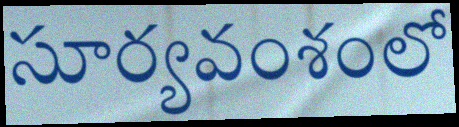
సూర్యవంశంలో